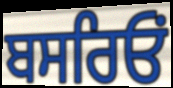
ਬਸਰਿਓਂ